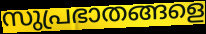
സുപ്രഭാതങ്ങളെ